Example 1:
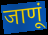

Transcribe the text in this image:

जाणूं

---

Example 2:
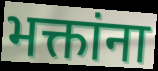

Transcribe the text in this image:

भक्तांना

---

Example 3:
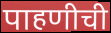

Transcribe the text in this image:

पाहणीची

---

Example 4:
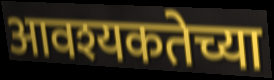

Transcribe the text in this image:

आवश्यकतेच्या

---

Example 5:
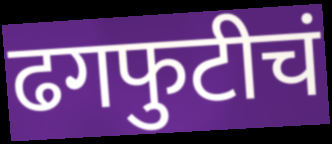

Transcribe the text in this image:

ढगफुटीचं